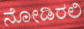
ನೋಡಿರಲಿ